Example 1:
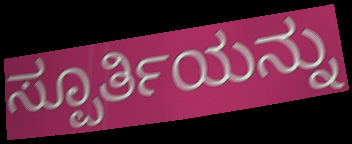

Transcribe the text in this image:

ಸ್ಪೂರ್ತಿಯನ್ನು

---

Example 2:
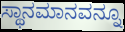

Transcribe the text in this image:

ಸ್ಥಾನಮಾನವನ್ನೂ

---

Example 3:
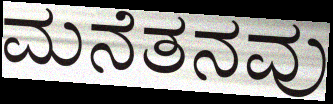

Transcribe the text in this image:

ಮನೆತನವು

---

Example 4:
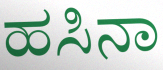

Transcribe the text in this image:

ಹಸಿನಾ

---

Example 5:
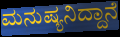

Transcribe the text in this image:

ಮನುಷ್ಯನಿದ್ದಾನೆ